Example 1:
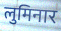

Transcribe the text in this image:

लुमिनार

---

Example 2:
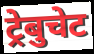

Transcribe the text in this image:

ट्रेबुचेट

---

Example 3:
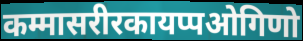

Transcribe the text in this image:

कम्मासरीरकायप्पओगिणो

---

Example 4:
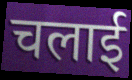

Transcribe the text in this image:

चलाई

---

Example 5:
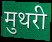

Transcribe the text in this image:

मुथरी